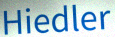
Hiedler